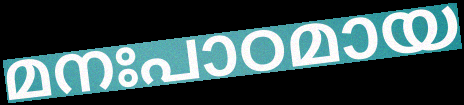
മനഃപാഠമായ